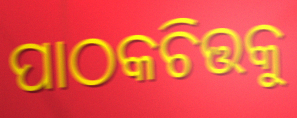
ପାଠକଚିତ୍ତକୁ